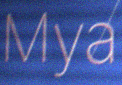
Mya